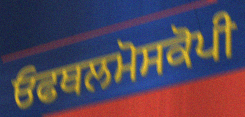
ਓਫਥਲਮੋਸਕੋਪੀ